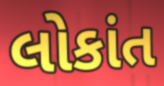
લોકાંત